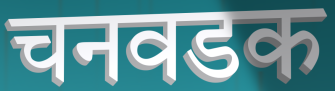
चनवडक